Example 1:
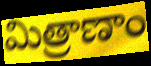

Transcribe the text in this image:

మిత్రాణాం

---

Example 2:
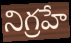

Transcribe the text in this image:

నిగ్రహే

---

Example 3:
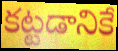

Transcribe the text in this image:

కట్టడానికే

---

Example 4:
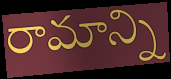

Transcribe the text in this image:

రామాన్ని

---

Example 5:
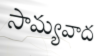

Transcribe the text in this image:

సామ్యవాద